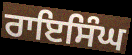
ਰਾਇਸਿੰਘ